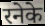
रनेके